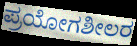
ಪ್ರಯೋಗಶೀಲರ